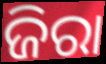
ଜିରା